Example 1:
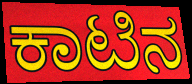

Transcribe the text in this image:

ಕಾಟಿನ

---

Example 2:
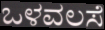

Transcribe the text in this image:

ಒಳವಲಸೆ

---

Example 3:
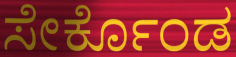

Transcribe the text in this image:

ಸೇರ್ಕೊಂಡ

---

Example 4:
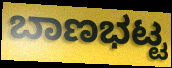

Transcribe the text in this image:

ಬಾಣಭಟ್ಟ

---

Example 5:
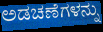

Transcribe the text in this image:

ಅಡಚಣೆಗಳನ್ನು